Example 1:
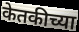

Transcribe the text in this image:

केतकीच्या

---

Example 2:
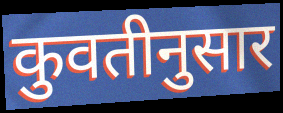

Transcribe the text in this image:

कुवतीनुसार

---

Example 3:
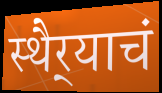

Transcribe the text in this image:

स्थैर्याचं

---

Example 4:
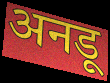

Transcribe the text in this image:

अनडू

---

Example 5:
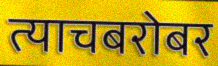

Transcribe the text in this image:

त्‍याचबरोबर